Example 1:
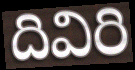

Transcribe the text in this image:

దివిరి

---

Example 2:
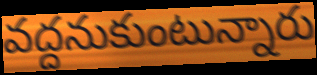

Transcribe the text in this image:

వద్దనుకుంటున్నారు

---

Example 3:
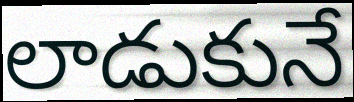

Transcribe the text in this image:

లాడుకునే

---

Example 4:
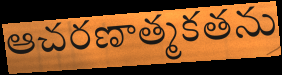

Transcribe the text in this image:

ఆచరణాత్మకతను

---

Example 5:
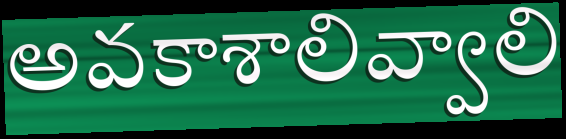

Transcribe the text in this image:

అవకాశాలివ్వాలి